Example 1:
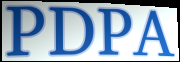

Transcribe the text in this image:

PDPA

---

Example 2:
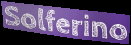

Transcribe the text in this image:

Solferino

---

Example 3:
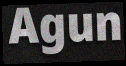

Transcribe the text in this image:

Agun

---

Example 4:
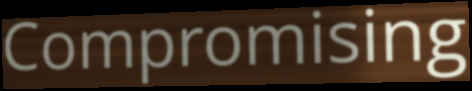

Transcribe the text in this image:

Compromising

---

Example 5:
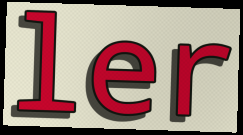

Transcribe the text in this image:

ler